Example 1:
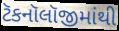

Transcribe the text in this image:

ટૅકનૉલૉજીમાંથી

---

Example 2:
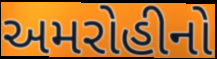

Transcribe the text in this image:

અમરોહીનો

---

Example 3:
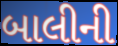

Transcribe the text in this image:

બાલીની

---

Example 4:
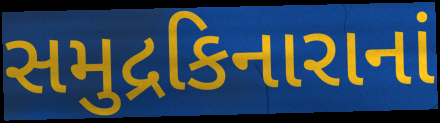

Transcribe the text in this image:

સમુદ્રકિનારાનાં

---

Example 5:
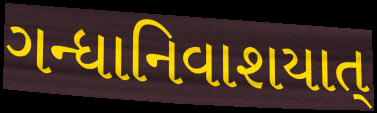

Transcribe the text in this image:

ગન્ધાનિવાશયાત્